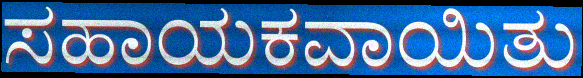
ಸಹಾಯಕವಾಯಿತು